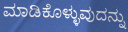
ಮಾಡಿಕೊಳ್ಳುವುದನ್ನು